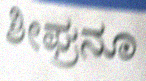
ಶೀಘ್ರನೂ